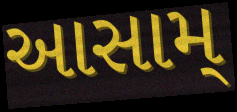
આસામ્